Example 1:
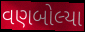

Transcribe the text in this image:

વણબોલ્યા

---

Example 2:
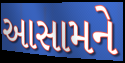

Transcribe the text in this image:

આસામને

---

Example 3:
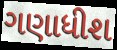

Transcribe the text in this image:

ગણાધીશ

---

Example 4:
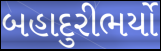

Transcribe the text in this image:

બહાદુરીભર્યો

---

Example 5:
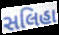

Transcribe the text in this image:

સલિહા